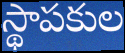
స్థాపకుల